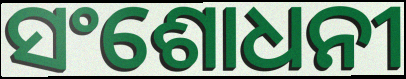
ସଂଶୋଧନୀ